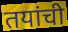
तयांची